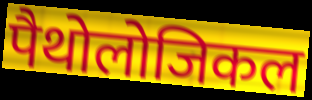
पैथोलोजिकल